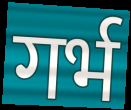
गर्भ